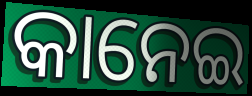
କାନେଇ